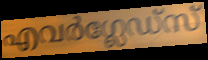
എവർഗ്ലേഡ്സ്